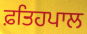
ਫ਼ਤਿਹਪਾਲ